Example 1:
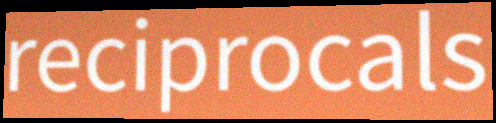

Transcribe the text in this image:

reciprocals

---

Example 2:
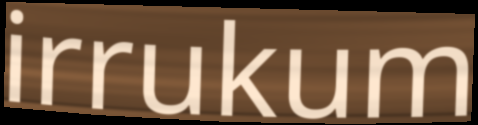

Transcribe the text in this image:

irrukum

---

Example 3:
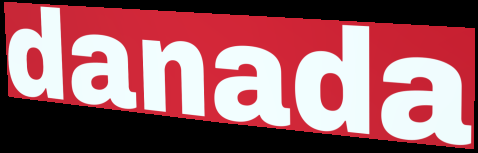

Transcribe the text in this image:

danada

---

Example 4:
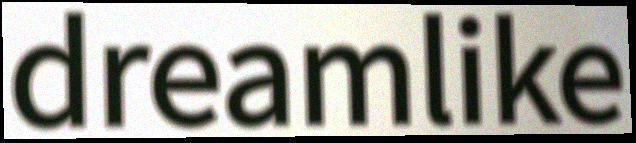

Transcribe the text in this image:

dreamlike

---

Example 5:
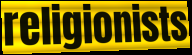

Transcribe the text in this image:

religionists